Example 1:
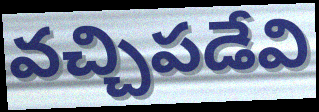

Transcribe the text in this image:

వచ్చిపడేవి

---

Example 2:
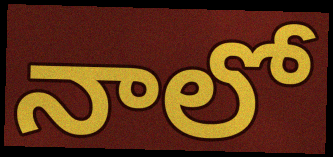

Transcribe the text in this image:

నాలో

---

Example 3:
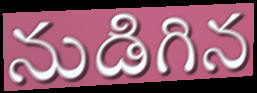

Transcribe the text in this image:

నుడిగిన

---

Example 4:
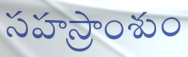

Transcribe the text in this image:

సహస్రాంశుం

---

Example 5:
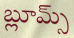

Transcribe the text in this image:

బ్లూమ్స్